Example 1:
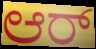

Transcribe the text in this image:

ಆರ್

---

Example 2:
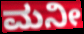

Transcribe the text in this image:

ಮನೀ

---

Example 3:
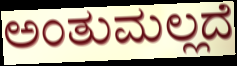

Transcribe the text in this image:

ಅಂತುಮಲ್ಲದೆ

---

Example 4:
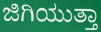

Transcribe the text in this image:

ಜಿಗಿಯುತ್ತಾ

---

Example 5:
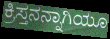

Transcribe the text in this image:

ಕ್ರಿಸ್ತನನ್ನಾಗಿಯೂ